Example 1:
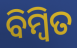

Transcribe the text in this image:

ବିମ୍ବିତ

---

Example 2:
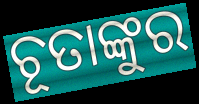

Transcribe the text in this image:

ଚୂତାଙ୍କୁର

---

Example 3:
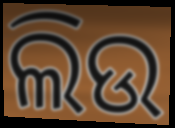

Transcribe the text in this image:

ଲିଉ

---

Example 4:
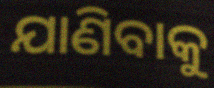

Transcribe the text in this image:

ଯାଣିବାକୁ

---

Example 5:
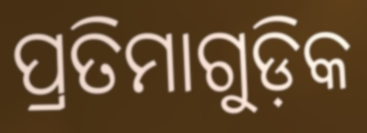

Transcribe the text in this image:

ପ୍ରତିମାଗୁଡ଼ିକ